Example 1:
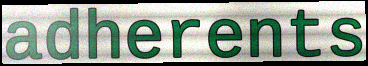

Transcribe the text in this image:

adherents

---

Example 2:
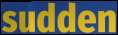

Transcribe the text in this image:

sudden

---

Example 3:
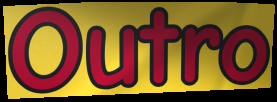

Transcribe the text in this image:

Outro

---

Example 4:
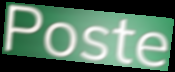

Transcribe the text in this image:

Poste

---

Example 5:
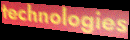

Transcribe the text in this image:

technologies